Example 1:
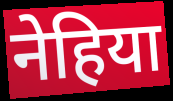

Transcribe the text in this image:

नेहिया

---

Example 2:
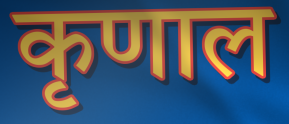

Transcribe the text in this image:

कृणाल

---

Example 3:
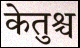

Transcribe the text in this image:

केतुश्च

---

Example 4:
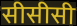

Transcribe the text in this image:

सीसीसी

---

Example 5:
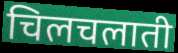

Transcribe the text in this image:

चिलचलाती